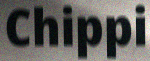
Chippi